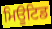
ਮਿਊਟਿਡ